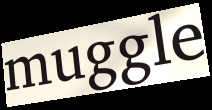
muggle